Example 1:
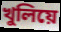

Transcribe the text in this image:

খুলিয়ে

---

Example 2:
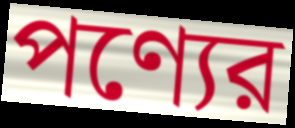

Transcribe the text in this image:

পণ্যের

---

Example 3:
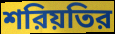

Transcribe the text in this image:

শরিয়তির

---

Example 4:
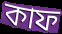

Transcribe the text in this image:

কাফ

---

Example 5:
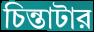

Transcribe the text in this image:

চিন্তাটার